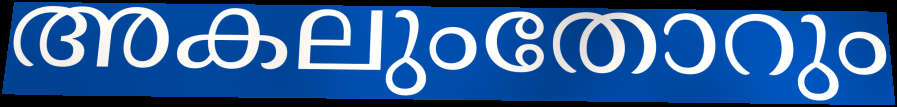
അകലുംതോറും